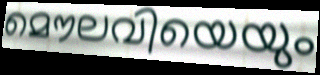
മൌലവിയെയും